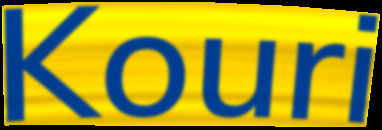
Kouri